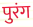
पुरंग